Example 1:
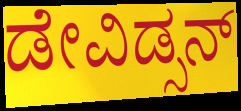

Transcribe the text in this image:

ಡೇವಿಡ್ಸನ್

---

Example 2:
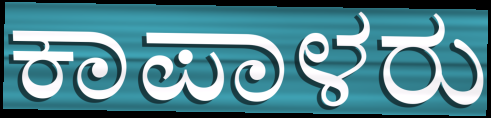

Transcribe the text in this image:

ಕಾಪಾಳರು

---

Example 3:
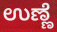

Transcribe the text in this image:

ಉಣ್ಣೆ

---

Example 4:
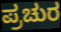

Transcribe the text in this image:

ಪ್ರಚುರ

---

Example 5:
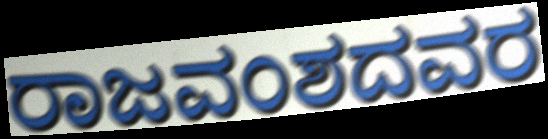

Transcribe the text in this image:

ರಾಜವಂಶದವರ